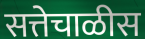
सत्तेचाळीस